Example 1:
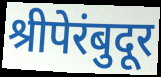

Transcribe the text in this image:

श्रीपेरंबुदूर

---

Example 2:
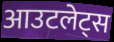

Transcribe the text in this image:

आउटलेट्स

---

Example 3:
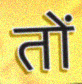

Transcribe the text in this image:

तों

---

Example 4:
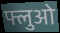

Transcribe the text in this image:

फ्लुओ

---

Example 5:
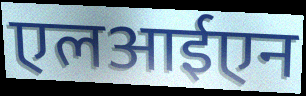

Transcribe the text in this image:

एलआईएन